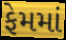
ફેમમાં